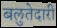
बलुतेदारी